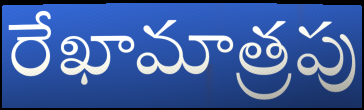
రేఖామాత్రపు